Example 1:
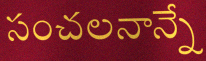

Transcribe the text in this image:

సంచలనాన్నే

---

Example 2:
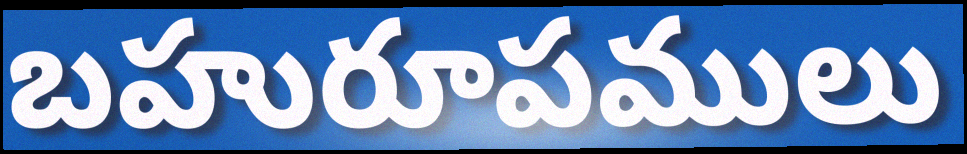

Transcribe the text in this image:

బహురూపములు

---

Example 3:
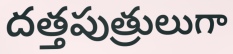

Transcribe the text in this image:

దత్తపుత్రులుగా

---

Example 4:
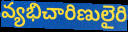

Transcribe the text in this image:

వ్యభిచారిణులైరి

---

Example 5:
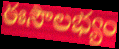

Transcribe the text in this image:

ఈసౌలభ్యం